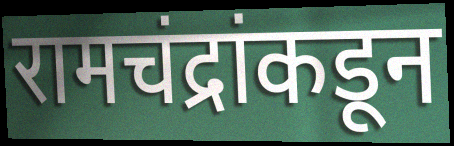
रामचंद्रांकडून